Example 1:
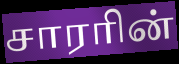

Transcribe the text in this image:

சாரரின்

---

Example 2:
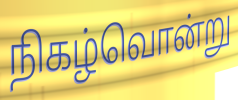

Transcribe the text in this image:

நிகழ்வொன்று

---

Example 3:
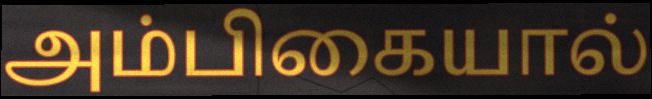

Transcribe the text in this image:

அம்பிகையால்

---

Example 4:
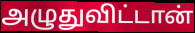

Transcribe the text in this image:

அழுதுவிட்டான்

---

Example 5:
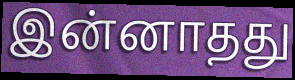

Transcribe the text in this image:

இன்னாதது